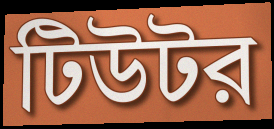
টিউটর